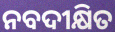
ନବଦୀକ୍ଷିତ